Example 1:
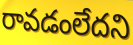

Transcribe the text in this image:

రావడంలేదని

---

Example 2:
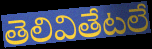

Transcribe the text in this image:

తెలివితేటలే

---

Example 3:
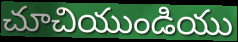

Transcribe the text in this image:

చూచియుండియు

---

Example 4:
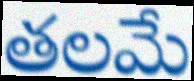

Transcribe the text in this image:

తలమే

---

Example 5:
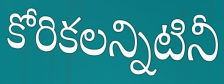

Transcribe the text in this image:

కోరికలన్నిటినీ